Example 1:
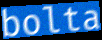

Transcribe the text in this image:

bolta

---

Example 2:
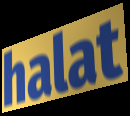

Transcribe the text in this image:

halat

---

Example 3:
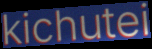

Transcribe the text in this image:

kichutei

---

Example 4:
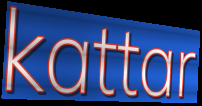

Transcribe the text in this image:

kattar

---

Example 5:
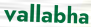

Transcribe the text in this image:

vallabha